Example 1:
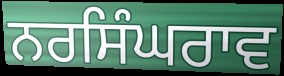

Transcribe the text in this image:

ਨਰਸਿੰਘਰਾਵ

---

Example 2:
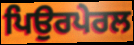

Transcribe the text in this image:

ਪਿਉਰਪੇਰਲ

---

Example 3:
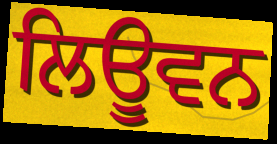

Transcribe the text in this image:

ਲਿਊਵਨ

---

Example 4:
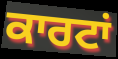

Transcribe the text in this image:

ਕਾਰਟਾਂ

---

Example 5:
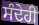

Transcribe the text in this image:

ਸੰਦੇਹੀ